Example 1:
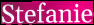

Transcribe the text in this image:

Stefanie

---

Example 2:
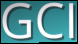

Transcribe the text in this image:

GCI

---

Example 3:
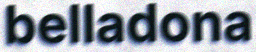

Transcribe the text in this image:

belladona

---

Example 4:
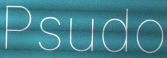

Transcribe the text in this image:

Psudo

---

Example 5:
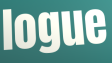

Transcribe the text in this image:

logue